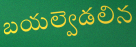
బయల్వెడలిన